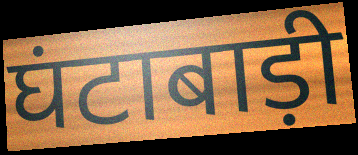
घंटाबाड़ी